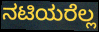
ನಟಿಯರೆಲ್ಲ